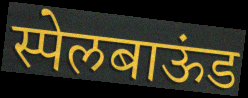
स्पेलबाऊंड